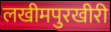
लखीमपुरखीरी